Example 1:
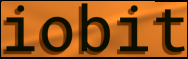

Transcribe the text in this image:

iobit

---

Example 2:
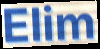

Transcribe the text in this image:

Elim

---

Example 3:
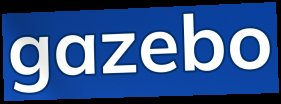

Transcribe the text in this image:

gazebo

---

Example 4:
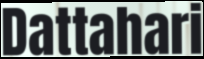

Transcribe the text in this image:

Dattahari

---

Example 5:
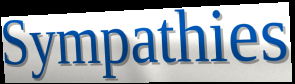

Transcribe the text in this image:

Sympathies